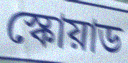
স্কোয়াড